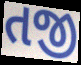
તજી